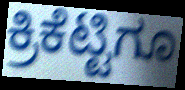
ಕ್ರಿಕೆಟ್ಟಿಗೂ